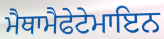
ਮੈਥਾਮੈਫੇਟੇਮਾਇਨ